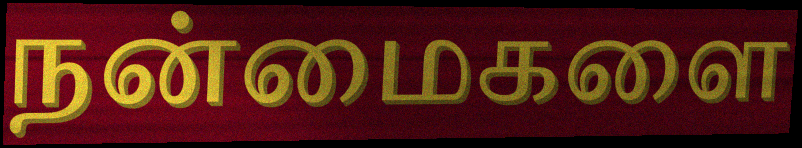
நன்மைகளை